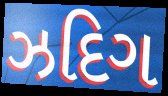
ઝદિગ